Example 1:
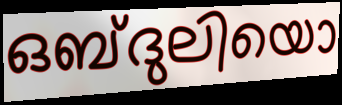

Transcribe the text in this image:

ഒബ്ദുലിയൊ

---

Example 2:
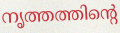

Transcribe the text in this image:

നൃത്തത്തിന്റെ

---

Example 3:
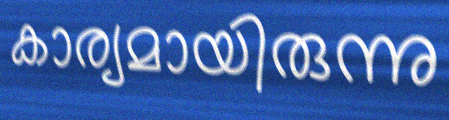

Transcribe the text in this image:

കാര്യമായിരുന്നു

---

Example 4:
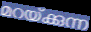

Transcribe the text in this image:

മറയ്‌ക്കുന്ന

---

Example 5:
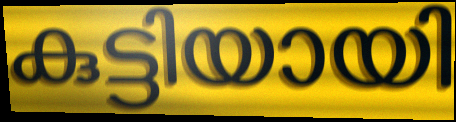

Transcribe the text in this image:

കുട്ടിയായി